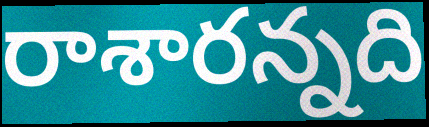
రాశారన్నది